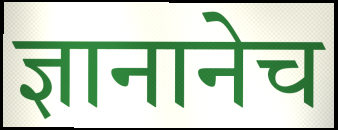
ज्ञानानेच